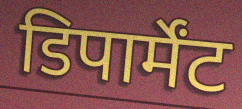
डिपार्मेंट